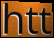
htt